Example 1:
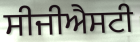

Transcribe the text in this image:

ਸੀਜੀਐਸਟੀ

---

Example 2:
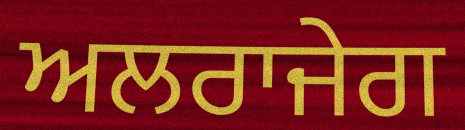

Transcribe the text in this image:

ਅਲਰਾਜੇਗ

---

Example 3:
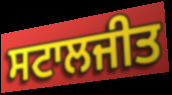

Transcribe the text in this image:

ਸਟਾਲਜੀਤ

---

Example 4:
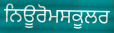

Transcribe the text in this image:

ਨਿਊਰੋਮਸਕੂਲਰ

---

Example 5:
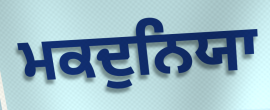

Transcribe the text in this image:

ਮਕਦੁਨਿਯਾ